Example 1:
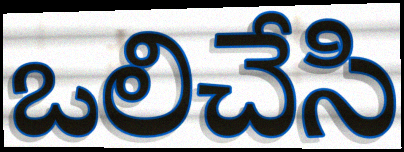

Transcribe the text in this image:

ఒలిచేసి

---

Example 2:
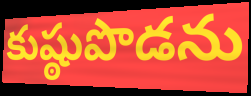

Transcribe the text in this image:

కుష్ఠుపొడను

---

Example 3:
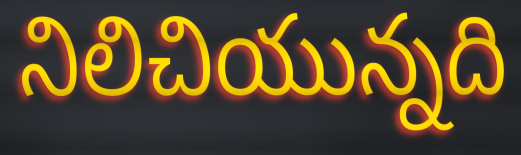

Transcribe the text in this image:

నిలిచియున్నది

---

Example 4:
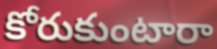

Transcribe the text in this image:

కోరుకుంటారా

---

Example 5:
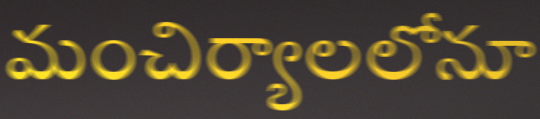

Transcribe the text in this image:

మంచిర్యాలలోనూ